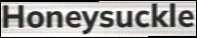
Honeysuckle